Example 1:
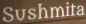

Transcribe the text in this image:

Sushmita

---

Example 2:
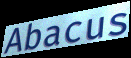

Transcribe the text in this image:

Abacus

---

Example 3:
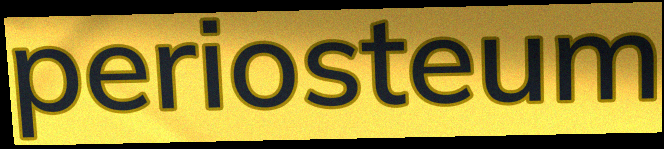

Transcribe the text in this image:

periosteum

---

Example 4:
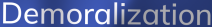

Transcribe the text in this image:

Demoralization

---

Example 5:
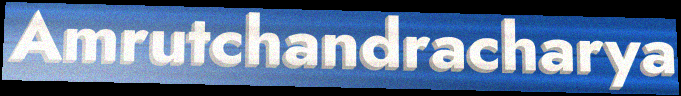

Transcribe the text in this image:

Amrutchandracharya